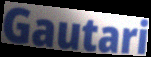
Gautari